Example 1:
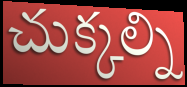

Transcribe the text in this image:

చుక్కల్ని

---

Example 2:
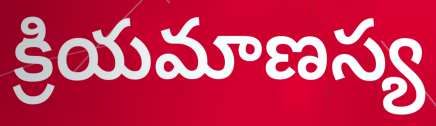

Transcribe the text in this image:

క్రియమాణస్య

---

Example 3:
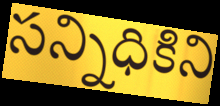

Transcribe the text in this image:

సన్నిధికిని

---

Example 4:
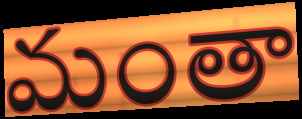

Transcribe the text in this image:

మంతా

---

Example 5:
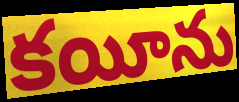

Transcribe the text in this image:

కయీను